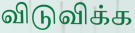
விடுவிக்க